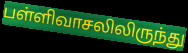
பள்ளிவாசலிலிருந்து